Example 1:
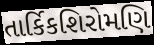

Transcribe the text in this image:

તાર્કિકશિરોમણિ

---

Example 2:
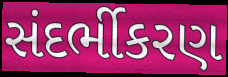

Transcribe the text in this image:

સંદર્ભીકરણ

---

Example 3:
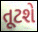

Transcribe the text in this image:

તૂટશે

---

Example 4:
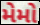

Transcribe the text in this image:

મેમો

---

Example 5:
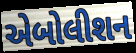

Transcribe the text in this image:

એબોલીશન